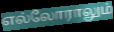
எல்லோராலும்